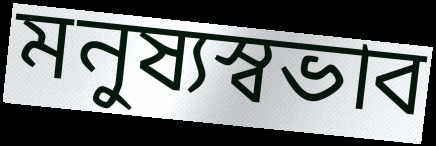
মনুষ্যস্বভাব